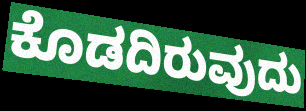
ಕೊಡದಿರುವುದು